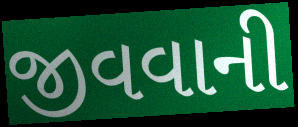
જીવવાની